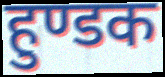
हुण्डक